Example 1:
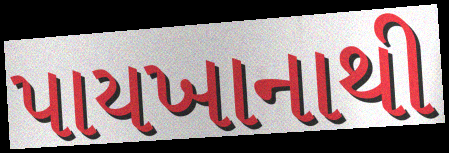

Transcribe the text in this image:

પાયખાનાથી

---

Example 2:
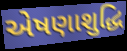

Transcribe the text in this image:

એષણાશુદ્ધિ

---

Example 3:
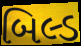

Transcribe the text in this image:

બિલ્ડ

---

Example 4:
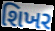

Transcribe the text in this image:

શિખર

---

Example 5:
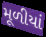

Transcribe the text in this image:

મૂળીયાં